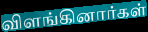
விளங்கினார்கள்